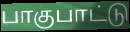
பாகுபாட்டு